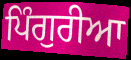
ਪਿੰਗੁਰੀਆ